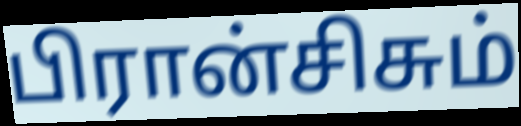
பிரான்சிசும்